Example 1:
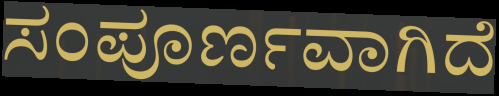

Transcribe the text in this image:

ಸಂಪೂರ್ಣವಾಗಿದೆ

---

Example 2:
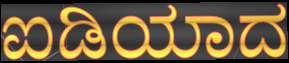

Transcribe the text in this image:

ಐಡಿಯಾದ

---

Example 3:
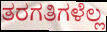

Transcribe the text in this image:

ತರಗತಿಗಳೆಲ್ಲ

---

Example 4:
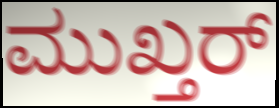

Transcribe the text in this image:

ಮುಖ್ತರ್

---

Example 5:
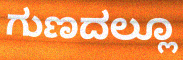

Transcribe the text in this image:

ಗುಣದಲ್ಲೂ